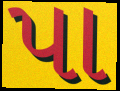
પા